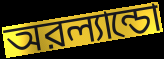
অরল্যান্ডো